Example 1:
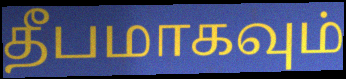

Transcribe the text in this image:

தீபமாகவும்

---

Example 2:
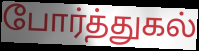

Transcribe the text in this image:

போர்த்துகல்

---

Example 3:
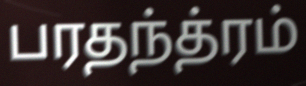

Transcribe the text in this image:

பரதந்த்ரம்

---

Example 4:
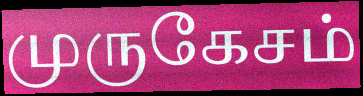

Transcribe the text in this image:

முருகேசம்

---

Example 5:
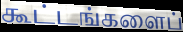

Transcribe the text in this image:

கூட்டங்களைப்